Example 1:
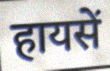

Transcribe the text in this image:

हायसें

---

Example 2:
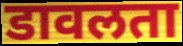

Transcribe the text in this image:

डावलता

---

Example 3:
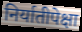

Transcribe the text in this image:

निर्यातीपेक्षा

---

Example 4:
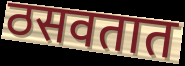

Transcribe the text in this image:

ठसवतात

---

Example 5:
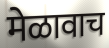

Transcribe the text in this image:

मेळावाच